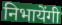
निभायेंगी